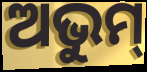
ଅଭୁମ୍